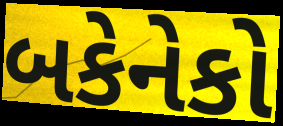
બકેનેકો